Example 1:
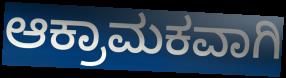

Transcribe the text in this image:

ಆಕ್ರಾಮಕವಾಗಿ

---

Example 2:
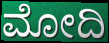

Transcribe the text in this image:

ಮೋದಿ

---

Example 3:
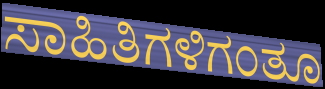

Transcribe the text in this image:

ಸಾಹಿತಿಗಳಿಗಂತೂ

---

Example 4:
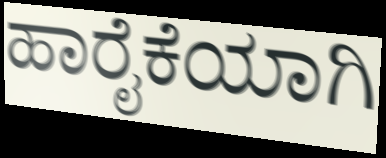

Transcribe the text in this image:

ಹಾರೈಕೆಯಾಗಿ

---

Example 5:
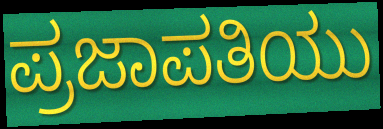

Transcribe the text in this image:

ಪ್ರಜಾಪತಿಯು